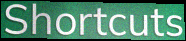
Shortcuts